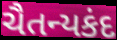
ચૈતન્યકંદ